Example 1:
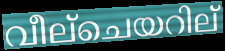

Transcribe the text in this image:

വീല്ചെയറില്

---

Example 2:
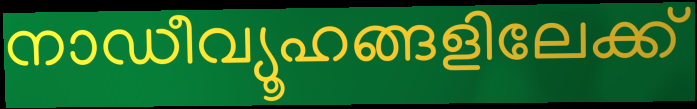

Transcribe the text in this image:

നാഡീവ്യൂഹങ്ങളിലേക്ക്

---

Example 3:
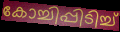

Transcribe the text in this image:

കോച്ചിപ്പിടിച്ച്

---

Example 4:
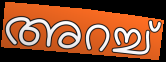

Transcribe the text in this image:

അറച്ച്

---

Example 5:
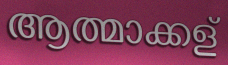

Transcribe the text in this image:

ആത്മാക്കള്